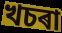
খচৰা